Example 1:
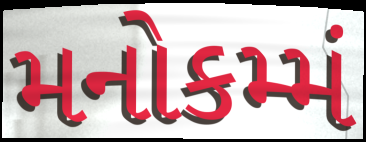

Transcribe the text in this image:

મનોકમ્મં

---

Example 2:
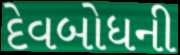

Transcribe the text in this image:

દેવબોધની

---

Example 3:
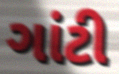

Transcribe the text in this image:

ગાંટી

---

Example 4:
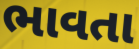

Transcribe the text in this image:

ભાવતા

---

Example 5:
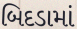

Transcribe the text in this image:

બિદડામાં